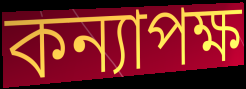
কন্যাপক্ষ